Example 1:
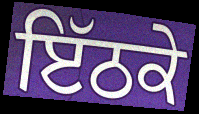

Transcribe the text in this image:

ਇੱਠਕੇ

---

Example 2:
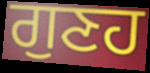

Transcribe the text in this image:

ਗੁਣਹ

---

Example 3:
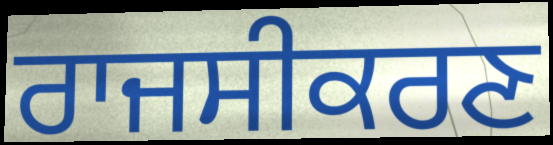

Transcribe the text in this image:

ਰਾਜਸੀਕਰਣ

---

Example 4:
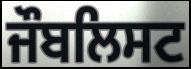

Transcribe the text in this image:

ਜੌਬਲਿਸਟ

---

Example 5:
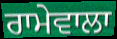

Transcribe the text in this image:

ਰਾਮੇਵਾਲਾ